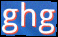
ghg